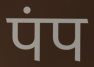
पंप